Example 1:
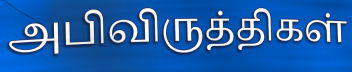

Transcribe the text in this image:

அபிவிருத்திகள்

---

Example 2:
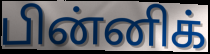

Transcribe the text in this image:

பின்னிக்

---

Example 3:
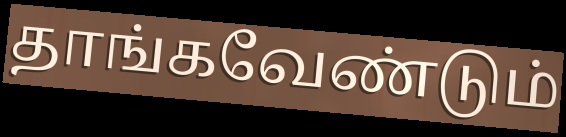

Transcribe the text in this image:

தாங்கவேண்டும்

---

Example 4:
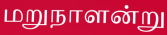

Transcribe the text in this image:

மறுநாளன்று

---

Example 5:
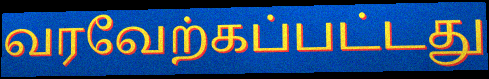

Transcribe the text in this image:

வரவேற்கப்பட்டது